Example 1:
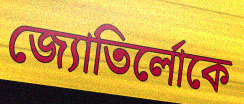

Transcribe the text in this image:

জ্যোতির্লোকে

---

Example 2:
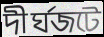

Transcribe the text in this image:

দীর্ঘজটে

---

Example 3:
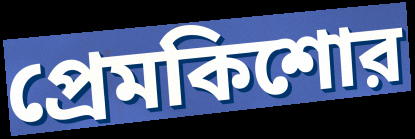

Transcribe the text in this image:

প্রেমকিশোর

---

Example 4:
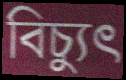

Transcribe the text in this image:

বিচ্যুৎ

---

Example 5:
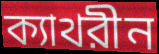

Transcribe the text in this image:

ক্যাথরীন